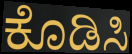
ಕೊಡಿಸಿ